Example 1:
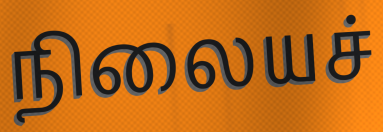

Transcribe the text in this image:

நிலையச்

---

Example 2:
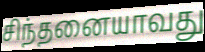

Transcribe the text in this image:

சிந்தனையாவது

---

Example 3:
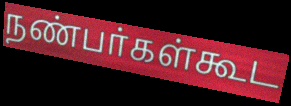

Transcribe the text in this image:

நண்பர்கள்கூட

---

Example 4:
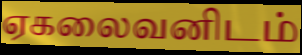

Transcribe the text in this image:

ஏகலைவனிடம்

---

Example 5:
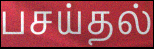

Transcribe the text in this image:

பசய்தல்